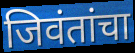
जिवंतांचा